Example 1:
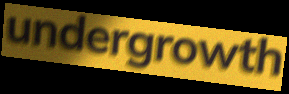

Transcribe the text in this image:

undergrowth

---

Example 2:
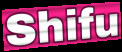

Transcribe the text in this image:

Shifu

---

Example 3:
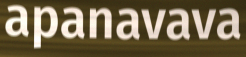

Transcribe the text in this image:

apanavava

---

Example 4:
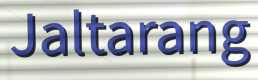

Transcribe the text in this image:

Jaltarang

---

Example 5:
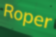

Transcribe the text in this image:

Roper